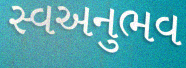
સ્વઅનુભવ